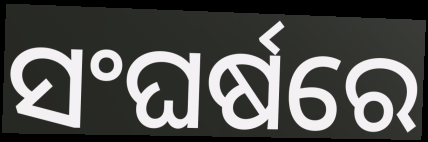
ସଂଘର୍ଷରେ